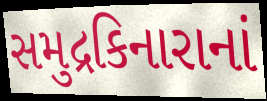
સમુદ્રકિનારાનાં